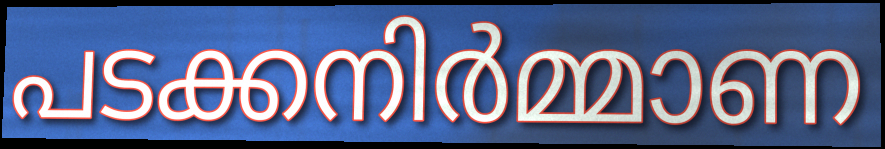
പടക്കനിർമ്മാണ